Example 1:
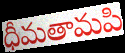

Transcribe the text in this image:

ధీమతామపి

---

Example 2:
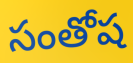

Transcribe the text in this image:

సంతోష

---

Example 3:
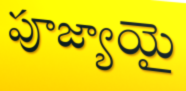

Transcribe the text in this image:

పూజ్యాయై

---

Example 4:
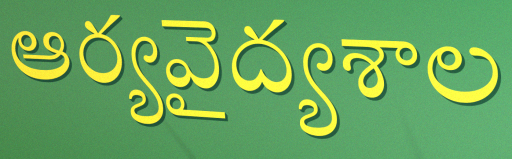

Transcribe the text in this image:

ఆర్యవైద్యశాల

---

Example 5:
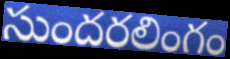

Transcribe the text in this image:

సుందరలింగం